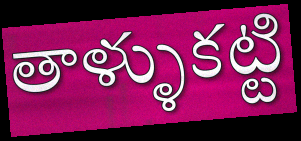
తాళ్ళుకట్టి